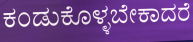
ಕಂಡುಕೊಳ್ಳಬೇಕಾದರೆ